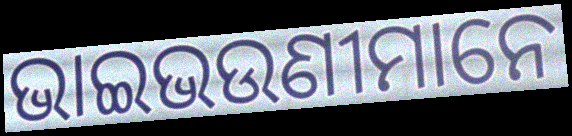
ଭାଇଭଉଣୀମାନେ